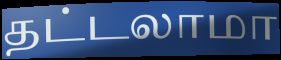
தட்டலாமா